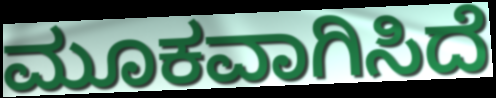
ಮೂಕವಾಗಿಸಿದೆ